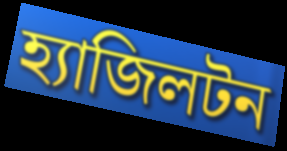
হ্যাজিলটন